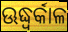
ଊଦ୍ଧ୍ୱର୍କାଳ